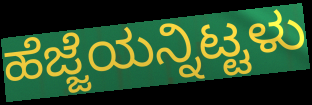
ಹೆಜ್ಜೆಯನ್ನಿಟ್ಟಳು